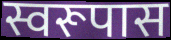
स्वरूपास